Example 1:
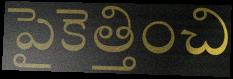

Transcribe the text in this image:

పైకెత్తించి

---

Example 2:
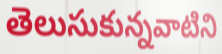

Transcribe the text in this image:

తెలుసుకున్నవాటిని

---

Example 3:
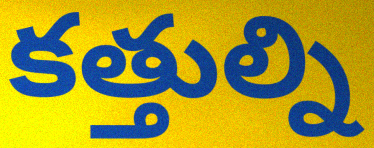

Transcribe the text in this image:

కత్తుల్ని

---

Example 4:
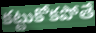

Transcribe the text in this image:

కట్టుకోకపోతే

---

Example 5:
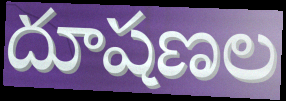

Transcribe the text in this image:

దూషణల